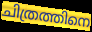
ചിത്രത്തിനെ